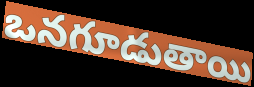
ఒనగూడుతాయి